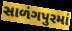
સાળંગપુરમાં